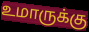
உமாருக்கு